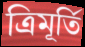
ত্ৰিমূৰ্তি